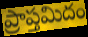
ప్రాప్తమిదం